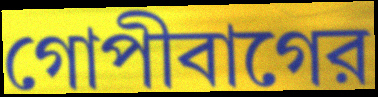
গোপীবাগের